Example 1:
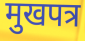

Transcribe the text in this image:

मुखपत्र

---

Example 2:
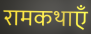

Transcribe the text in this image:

रामकथाएँ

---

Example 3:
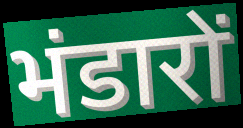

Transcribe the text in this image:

भंडारों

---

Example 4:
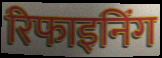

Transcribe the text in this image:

रिफाइनिंग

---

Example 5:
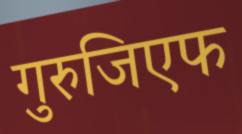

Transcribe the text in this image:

गुरुजिएफ